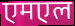
एमएल